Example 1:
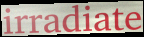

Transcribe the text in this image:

irradiate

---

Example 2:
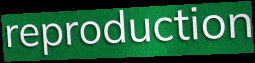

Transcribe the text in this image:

reproduction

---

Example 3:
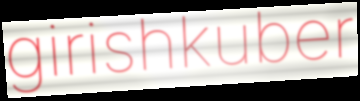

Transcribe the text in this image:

girishkuber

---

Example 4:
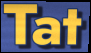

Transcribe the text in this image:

Tat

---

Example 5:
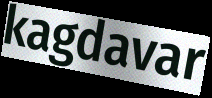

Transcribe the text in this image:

kagdavar